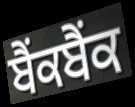
ਬੈਂਕਬੈਂਕ